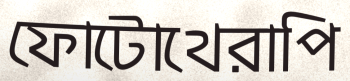
ফোটোথেরাপি